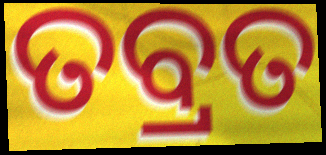
ତବ୍ରତ